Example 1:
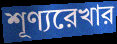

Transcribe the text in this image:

শূণ্যরেখার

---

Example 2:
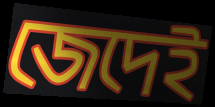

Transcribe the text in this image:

জেদেই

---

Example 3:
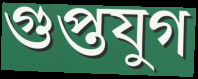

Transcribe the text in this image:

গুপ্তযুগ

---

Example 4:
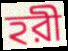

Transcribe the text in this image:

হরী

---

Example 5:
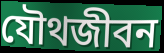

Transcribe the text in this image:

যৌথজীবন